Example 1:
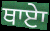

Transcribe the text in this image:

ਥਾਏਾ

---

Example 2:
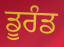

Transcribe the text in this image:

ਡੂਰੰਡ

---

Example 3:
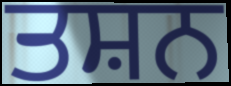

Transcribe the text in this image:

ਤਸ਼ਨ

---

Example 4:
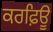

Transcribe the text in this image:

ਕਰਫ਼ਿਊ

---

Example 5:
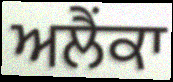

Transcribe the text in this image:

ਅਲੈਂਕਾ